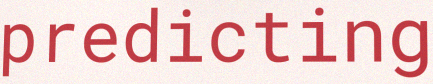
predicting